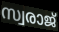
സ്വരാജ്